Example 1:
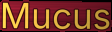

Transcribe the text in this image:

Mucus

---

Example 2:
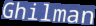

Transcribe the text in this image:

Ghilman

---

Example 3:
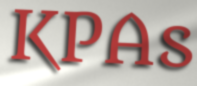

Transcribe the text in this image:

KPAs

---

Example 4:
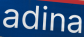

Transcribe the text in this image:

adina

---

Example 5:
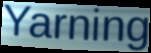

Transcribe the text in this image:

Yarning